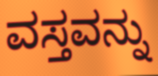
ವಸ್ತವನ್ನು